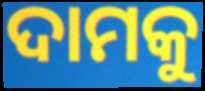
ଦାମକୁ